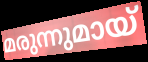
മരുന്നുമായ്